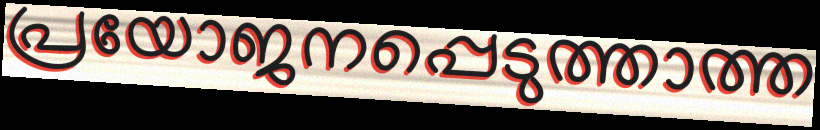
പ്രയോജനപ്പെടുത്താത്ത